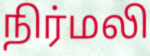
நிர்மலி